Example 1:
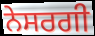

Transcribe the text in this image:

ਨੇਸਰਗੀ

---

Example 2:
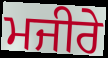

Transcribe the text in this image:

ਮਜੀਰੇ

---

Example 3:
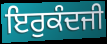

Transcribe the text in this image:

ਇਰੁਕੰਦਜੀ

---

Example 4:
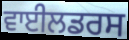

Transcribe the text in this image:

ਵਾਈਲਡਰਸ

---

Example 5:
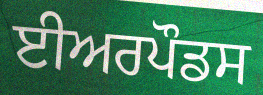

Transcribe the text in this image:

ਈਅਰਪੌਡਸ